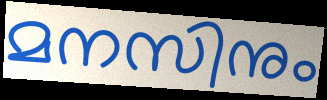
മനസിനും